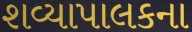
શવ્યાપાલકના